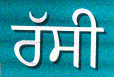
ਰੱਸੀ